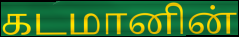
கடமானின்